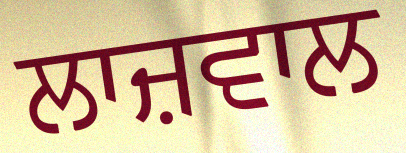
ਲਾਜ਼ਵਾਲ